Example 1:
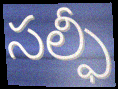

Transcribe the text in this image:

సల్ఫీ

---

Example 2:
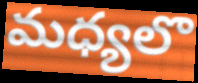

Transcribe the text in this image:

మధ్యలొ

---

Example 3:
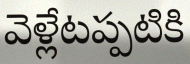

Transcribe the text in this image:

వెళ్లేటప్పటికి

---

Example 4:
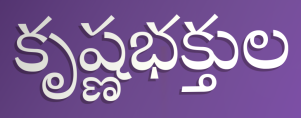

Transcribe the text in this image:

కృష్ణభక్తుల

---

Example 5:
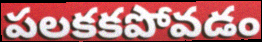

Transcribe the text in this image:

పలకకపోవడం